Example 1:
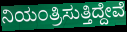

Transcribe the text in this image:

ನಿಯಂತ್ರಿಸುತ್ತಿದ್ದೇವೆ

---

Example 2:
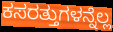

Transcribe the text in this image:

ಕಸರತ್ತುಗಳನ್ನೆಲ್ಲ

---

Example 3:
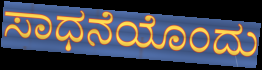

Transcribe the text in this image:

ಸಾಧನೆಯೊಂದು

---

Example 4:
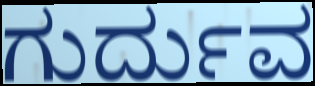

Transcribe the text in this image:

ಗುರ್ದುವ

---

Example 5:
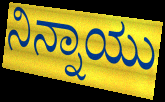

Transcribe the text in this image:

ನಿನ್ನಾಯು